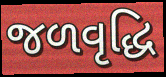
જળવૃદ્ધિ